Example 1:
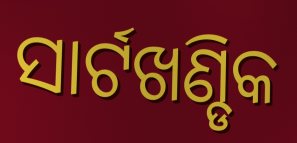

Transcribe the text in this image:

ସାର୍ଟଖଣ୍ଡିକ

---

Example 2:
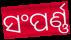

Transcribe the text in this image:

ସଂପର୍ଣ୍ଣ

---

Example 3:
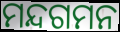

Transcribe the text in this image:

ମନ୍ଦଗମନ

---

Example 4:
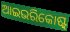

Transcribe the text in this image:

ଆଇଭରିକୋଷ୍ଟ୍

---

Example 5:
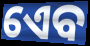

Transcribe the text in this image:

ଏେବ